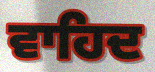
ਵਾਹਿਦ